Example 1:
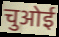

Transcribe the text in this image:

चुओई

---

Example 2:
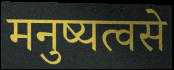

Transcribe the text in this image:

मनुष्यत्वसे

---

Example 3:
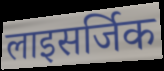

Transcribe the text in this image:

लाइसर्जिक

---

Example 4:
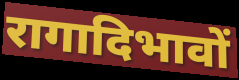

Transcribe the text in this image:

रागादिभावों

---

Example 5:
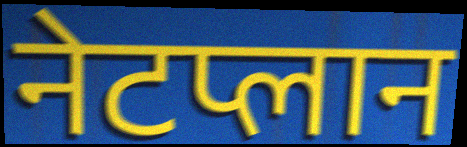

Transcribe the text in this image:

नेटप्लान